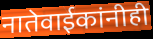
नातेवाईकांनीही